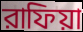
রাফিয়া